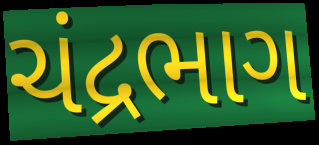
ચંદ્રભાગ